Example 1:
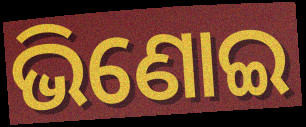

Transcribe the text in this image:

ଭିଣୋଇ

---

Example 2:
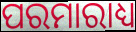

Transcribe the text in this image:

ପରମାରାଧ୍ୟ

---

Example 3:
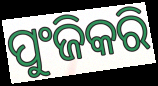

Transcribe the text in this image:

ପୁଂଜିକରି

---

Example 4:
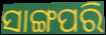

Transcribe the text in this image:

ସାଙ୍ଗପରି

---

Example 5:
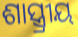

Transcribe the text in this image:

ଶାସ୍ତ୍ର୍ରୀୟ